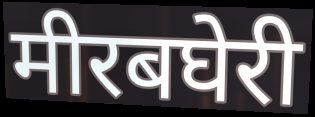
मीरबघेरी